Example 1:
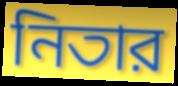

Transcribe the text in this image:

নিতার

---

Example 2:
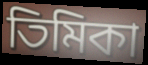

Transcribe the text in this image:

তিমিকা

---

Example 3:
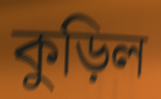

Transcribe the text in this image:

কুড়িল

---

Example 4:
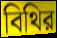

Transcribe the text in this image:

বিথির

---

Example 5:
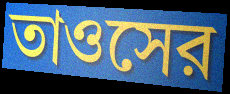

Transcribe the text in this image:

তাওসের